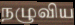
நழுவிய